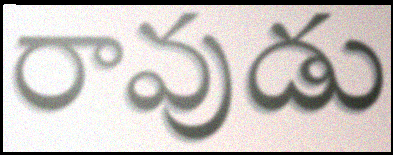
రావుడు